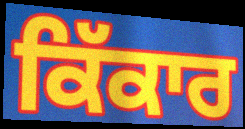
ਕਿੱਕਾਰ